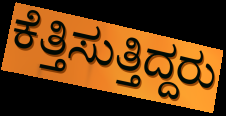
ಕೆತ್ತಿಸುತ್ತಿದ್ದರು